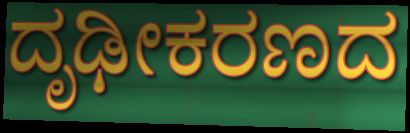
ದೃಢೀಕರಣದ